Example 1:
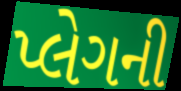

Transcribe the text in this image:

પ્લેગની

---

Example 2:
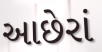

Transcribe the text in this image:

આછેરાં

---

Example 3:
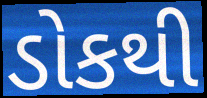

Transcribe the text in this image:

ડોકથી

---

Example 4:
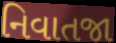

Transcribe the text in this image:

નિવાતજા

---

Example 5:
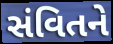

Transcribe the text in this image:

સંવિતને